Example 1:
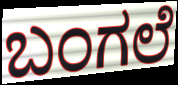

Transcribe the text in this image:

ಬಂಗಲೆ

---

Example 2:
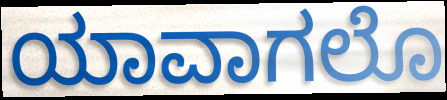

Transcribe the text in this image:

ಯಾವಾಗಲೊ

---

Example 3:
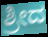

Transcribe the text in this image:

ಶ್ರೀದ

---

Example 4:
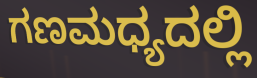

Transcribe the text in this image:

ಗಣಮಧ್ಯದಲ್ಲಿ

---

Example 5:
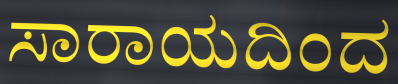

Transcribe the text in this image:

ಸಾರಾಯದಿಂದ